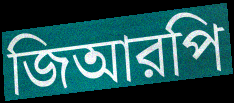
জিআরপি